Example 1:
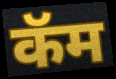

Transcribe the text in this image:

कॅम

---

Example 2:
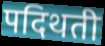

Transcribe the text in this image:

पदिथती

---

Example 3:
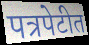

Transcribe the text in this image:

पत्रपेटीत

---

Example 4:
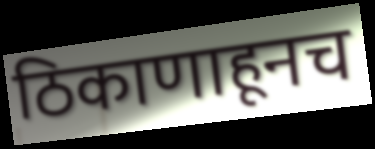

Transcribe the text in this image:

ठिकाणाहूनच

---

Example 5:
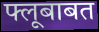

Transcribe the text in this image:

फ्लूबाबत